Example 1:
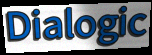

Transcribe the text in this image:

Dialogic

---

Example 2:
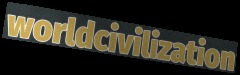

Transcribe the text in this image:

worldcivilization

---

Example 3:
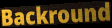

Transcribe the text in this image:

Backround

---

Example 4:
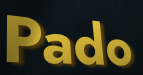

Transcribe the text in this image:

Pado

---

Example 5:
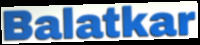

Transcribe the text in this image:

Balatkar